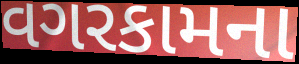
વગરકામના